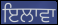
ਇਲਾਵਾ